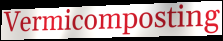
Vermicomposting